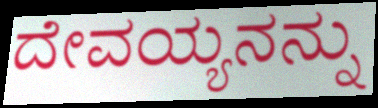
ದೇವಯ್ಯನನ್ನು